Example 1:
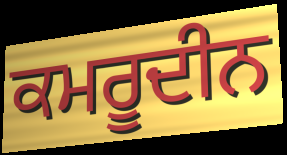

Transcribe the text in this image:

ਕਮਰੂਦੀਨ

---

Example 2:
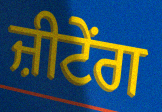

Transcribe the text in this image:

ਜ਼ੀਟੇਂਗ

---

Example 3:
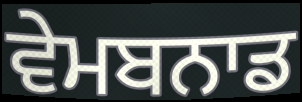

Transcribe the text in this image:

ਵੇਮਬਨਾਡ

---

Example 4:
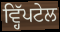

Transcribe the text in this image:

ਵ੍ਹਿੱਪਟੇਲ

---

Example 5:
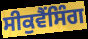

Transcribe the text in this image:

ਸੀਕੁਵੈਂਸਿੰਗ